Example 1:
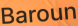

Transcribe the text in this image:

Baroun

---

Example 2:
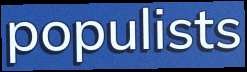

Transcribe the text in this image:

populists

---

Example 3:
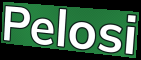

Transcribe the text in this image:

Pelosi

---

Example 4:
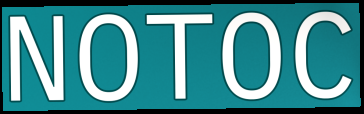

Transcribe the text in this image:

NOTOC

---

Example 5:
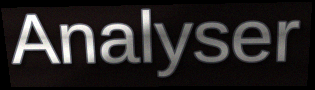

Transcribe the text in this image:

Analyser